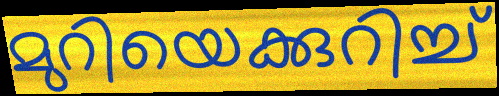
മുറിയെക്കുറിച്ച്